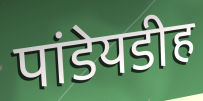
पांडेयडीह